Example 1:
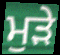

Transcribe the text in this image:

ਮੁੜੇ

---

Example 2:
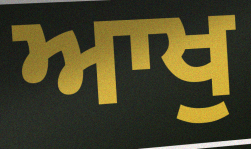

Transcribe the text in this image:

ਆਖੁ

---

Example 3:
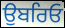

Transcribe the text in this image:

ਉਬਰਿਓ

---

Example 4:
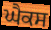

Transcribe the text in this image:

ਘੈਕਸ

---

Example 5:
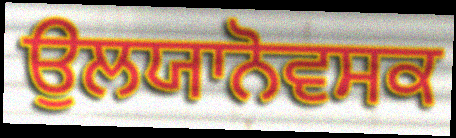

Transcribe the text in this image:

ਉਲਯਾਨੋਵਸਕ